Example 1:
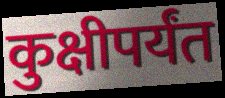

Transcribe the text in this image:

कुक्षीपर्यंत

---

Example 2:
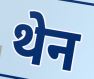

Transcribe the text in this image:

थेन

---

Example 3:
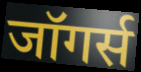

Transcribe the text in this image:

जॉगर्स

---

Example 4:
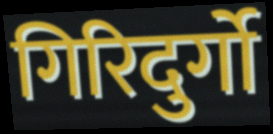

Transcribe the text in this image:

गिरिदुर्गो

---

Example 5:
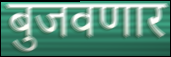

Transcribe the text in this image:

बुजवणार